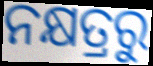
ନକ୍ଷତ୍ରରୁ